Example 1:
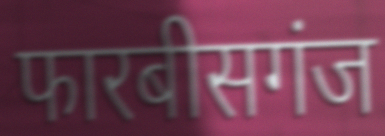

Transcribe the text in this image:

फारबीसगंज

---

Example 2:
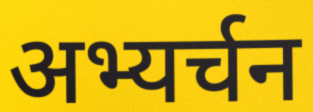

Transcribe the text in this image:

अभ्यर्चन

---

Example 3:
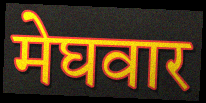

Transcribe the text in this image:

मेघवार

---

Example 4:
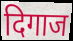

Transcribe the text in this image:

दिगाज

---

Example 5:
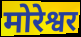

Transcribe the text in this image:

मोरेश्वर